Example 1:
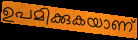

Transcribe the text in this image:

ഉപമിക്കുകയാണ്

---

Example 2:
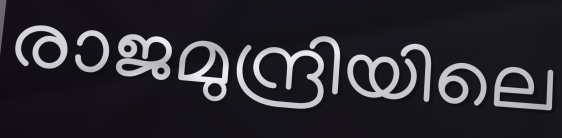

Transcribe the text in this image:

രാജമുന്ദ്രിയിലെ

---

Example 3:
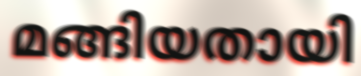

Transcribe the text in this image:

മങ്ങിയതായി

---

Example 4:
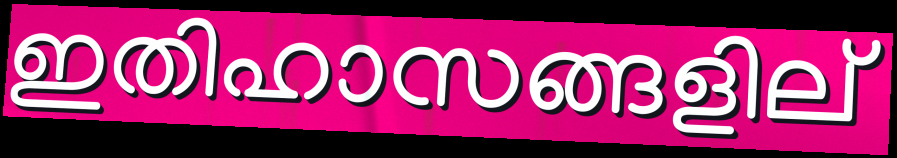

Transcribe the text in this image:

ഇതിഹാസങ്ങളില്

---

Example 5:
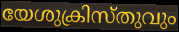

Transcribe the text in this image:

യേശുക്രിസ്തുവും